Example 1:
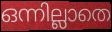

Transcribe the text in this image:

ഒന്നില്ലാതെ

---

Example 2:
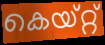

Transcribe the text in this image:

കെയ്റ്റ്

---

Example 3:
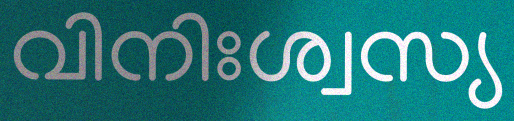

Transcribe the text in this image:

വിനിഃശ്വസ്യ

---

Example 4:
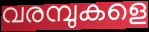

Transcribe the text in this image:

വരമ്പുകളെ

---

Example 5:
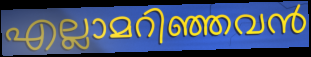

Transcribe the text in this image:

എല്ലാമറിഞ്ഞവൻ